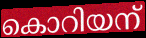
കൊറിയന്